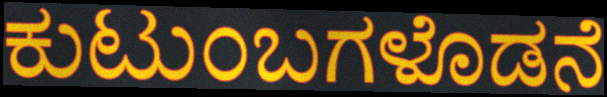
ಕುಟುಂಬಗಳೊಡನೆ